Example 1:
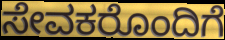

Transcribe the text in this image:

ಸೇವಕರೊಂದಿಗೆ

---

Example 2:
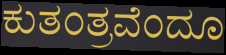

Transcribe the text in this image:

ಕುತಂತ್ರವೆಂದೂ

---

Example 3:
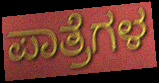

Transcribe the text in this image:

ಪಾತ್ರೆಗಳ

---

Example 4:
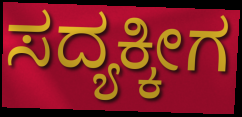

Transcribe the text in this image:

ಸದ್ಯಕ್ಕೀಗ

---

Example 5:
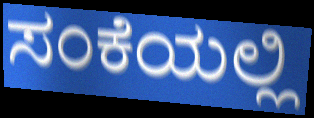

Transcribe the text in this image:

ಸಂಕೆಯಲ್ಲಿ